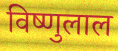
विष्णुलाल